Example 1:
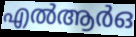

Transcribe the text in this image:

എൽആർഒ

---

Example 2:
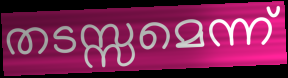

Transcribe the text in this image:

തടസ്സമെന്ന്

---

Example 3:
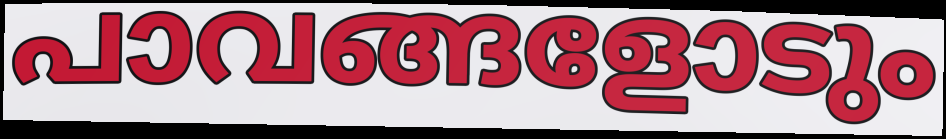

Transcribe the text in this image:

പാവങ്ങളോടും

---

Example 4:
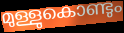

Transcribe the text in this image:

മുള്ളുകൊണ്ടും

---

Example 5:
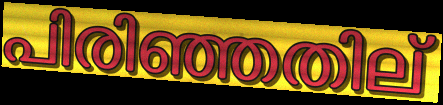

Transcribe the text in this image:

പിരിഞ്ഞതില്